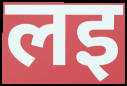
लइ